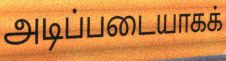
அடிப்படையாகக்